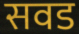
सवड